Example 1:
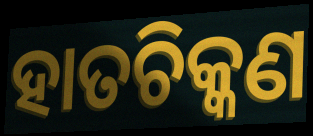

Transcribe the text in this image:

ହାତଚିକ୍କଣ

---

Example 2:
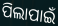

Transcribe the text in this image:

ପିଲାପାଇଁ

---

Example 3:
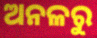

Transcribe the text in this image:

ଅନଳରୁ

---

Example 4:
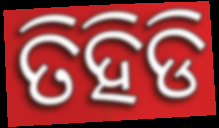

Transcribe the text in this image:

ତିହିଡି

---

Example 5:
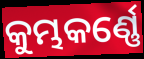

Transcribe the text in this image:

କୁମ୍ଭକର୍ଣ୍ଣେ